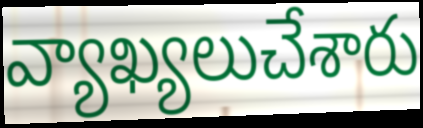
వ్యాఖ్యలుచేశారు